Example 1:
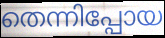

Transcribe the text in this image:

തെന്നിപ്പോയ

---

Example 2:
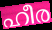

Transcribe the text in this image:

ഹീര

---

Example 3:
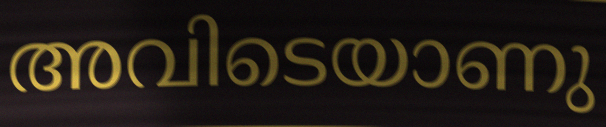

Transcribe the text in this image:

അവിടെയാണു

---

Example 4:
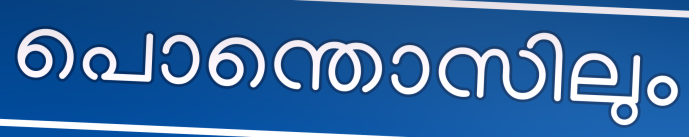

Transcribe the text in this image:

പൊന്തൊസിലും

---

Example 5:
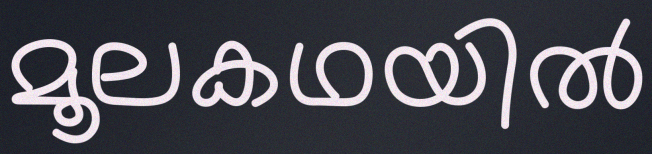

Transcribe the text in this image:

മൂലകഥയിൽ